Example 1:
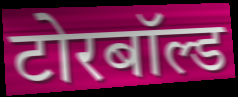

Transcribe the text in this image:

टोरबॉल्ड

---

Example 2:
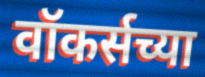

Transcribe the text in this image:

वॉकर्सच्या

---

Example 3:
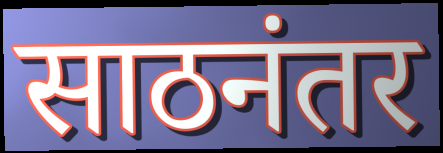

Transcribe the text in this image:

साठनंतर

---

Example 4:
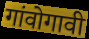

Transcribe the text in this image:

गांवोगावी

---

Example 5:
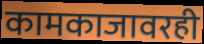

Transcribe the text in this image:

कामकाजावरही